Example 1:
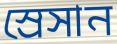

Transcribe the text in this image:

স্রেসান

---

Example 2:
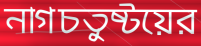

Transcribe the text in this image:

নাগচতুষ্টয়ের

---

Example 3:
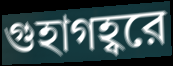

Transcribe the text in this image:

গুহাগহ্বরে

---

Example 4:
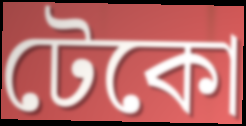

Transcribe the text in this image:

টেকো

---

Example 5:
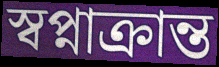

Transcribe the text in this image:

স্বপ্নাক্রান্ত